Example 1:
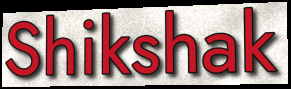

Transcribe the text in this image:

Shikshak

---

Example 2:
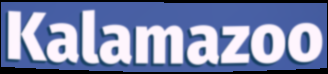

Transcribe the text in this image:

Kalamazoo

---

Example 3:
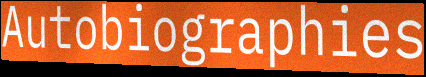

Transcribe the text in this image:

Autobiographies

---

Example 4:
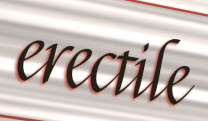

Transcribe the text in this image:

erectile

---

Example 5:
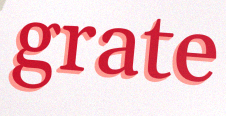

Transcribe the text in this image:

grate